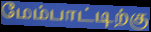
மேம்பாட்டிற்கு